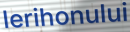
Ierihonului